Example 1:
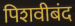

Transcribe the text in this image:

पिशवीबंद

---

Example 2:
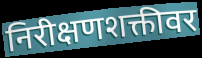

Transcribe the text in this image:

निरीक्षणशक्तीवर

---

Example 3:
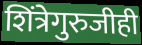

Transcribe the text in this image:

शिंत्रेगुरुजीही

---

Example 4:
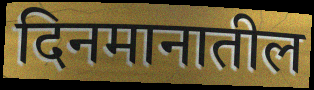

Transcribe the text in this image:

दिनमानातील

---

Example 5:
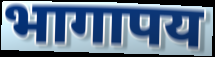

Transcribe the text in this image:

भागापय